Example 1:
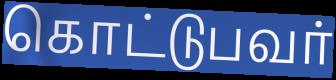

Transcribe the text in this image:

கொட்டுபவர்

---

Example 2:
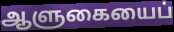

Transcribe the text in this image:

ஆளுகையைப்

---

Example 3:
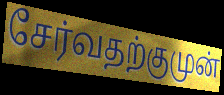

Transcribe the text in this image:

சேர்வதற்குமுன்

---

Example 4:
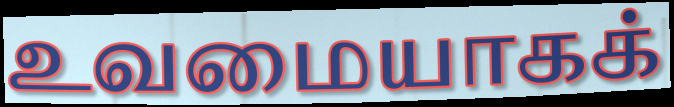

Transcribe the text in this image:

உவமையாகக்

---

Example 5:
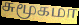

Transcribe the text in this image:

சுமூகமா